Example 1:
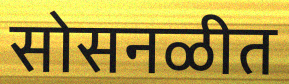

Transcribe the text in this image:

सोसनळीत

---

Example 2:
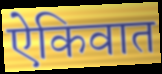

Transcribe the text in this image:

ऐकिवात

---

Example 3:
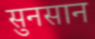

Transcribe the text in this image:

सुनसान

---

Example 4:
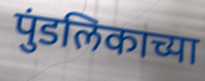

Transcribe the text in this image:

पुंडलिकाच्या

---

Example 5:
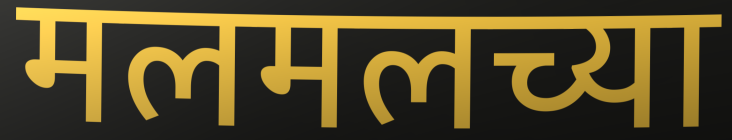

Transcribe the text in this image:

मलमलच्या